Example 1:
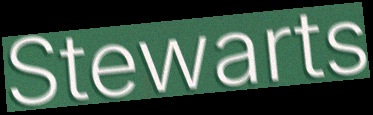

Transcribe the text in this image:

Stewarts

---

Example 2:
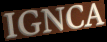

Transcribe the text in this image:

IGNCA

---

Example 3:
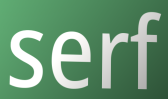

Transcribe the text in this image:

serf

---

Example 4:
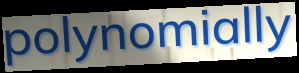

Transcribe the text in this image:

polynomially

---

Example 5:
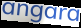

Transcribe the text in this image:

angara